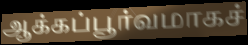
ஆக்கப்பூர்வமாகச்